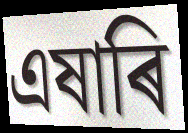
এষাৰি